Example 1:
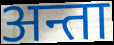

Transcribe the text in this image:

अन्ता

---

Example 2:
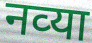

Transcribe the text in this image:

नव्‍या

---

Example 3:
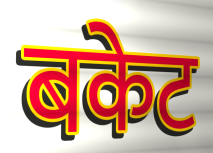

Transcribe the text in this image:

बकेट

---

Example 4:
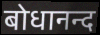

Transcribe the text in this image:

बोधानन्द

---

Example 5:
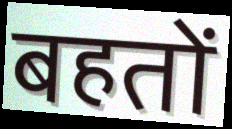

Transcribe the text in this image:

बहतों